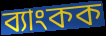
ব্যাংকক